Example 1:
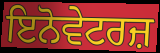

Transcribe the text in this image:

ਇਨੋਵੇਟਰਜ਼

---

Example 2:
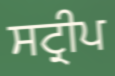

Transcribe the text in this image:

ਸਟ੍ਰੀਪ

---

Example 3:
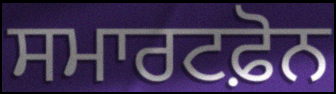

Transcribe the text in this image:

ਸਮਾਰਟਫ਼ੋਨ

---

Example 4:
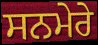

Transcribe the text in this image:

ਸਨਮੇਰੇ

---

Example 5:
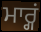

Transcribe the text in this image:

ਮਾਰ੍ਗਂ